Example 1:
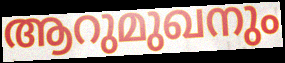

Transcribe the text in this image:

ആറുമുഖനും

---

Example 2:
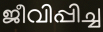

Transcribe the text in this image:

ജീവിപ്പിച്ച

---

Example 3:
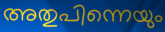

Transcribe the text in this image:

അതുപിന്നെയും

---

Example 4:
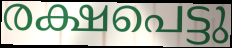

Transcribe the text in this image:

രക്ഷപെട്ടു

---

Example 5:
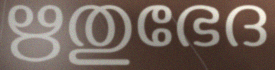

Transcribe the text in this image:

ഋതുഭേദ